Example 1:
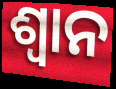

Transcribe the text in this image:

ଶ୍ଵାନ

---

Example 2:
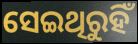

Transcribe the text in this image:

ସେଇଥିରୁହିଁ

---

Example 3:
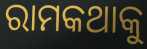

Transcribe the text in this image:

ରାମକଥାକୁ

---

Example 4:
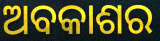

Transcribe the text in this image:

ଅବକାଶର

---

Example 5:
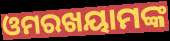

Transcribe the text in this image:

ଓମରଖୟାମଙ୍କ